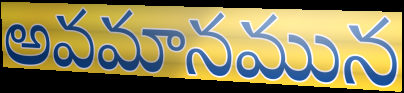
అవమానమున